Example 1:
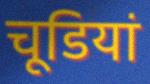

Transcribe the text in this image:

चूडियां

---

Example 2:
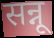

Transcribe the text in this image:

सन्नू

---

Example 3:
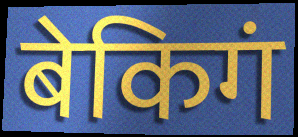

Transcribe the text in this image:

बेकिगं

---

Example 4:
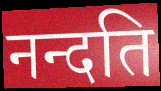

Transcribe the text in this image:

नन्दति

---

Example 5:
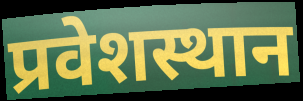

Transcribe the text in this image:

प्रवेशस्थान